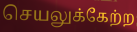
செயலுக்கேற்ற